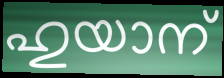
ഹുയാന്